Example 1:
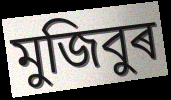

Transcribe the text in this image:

মুজিবুৰ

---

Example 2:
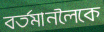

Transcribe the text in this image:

বৰ্তমানলৈকে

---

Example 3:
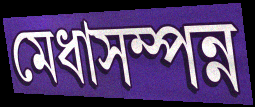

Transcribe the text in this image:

মেধাসম্পন্ন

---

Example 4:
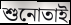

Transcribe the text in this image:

শুনোতাই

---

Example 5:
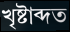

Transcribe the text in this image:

খৃষ্টাব্দত